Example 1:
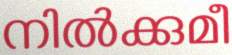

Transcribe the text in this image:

നിൽക്കുമീ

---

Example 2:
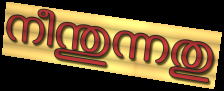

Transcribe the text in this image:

നീന്തുന്നതു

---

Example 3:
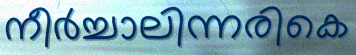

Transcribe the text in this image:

നീർച്ചാലിന്നരികെ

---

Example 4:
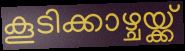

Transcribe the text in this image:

കൂടിക്കാഴ്ചയ്ക്ക്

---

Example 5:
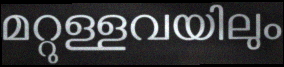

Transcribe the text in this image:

മറ്റുള്ളവയിലും